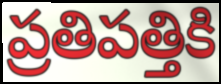
ప్రతిపత్తికి